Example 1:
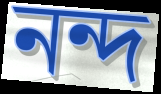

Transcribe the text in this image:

নন্দ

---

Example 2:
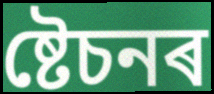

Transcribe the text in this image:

ষ্টেচনৰ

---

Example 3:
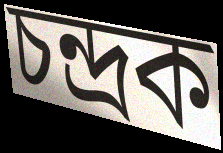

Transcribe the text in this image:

চন্দ্ৰক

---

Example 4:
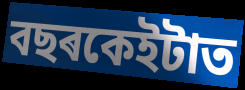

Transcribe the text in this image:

বছৰকেইটাত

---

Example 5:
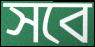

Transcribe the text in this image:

সবে